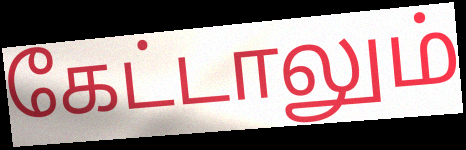
கேட்டாலும்